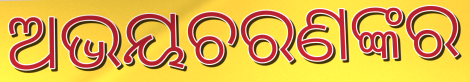
ଅଭୟଚରଣଙ୍କର